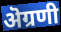
ऄग्रणी